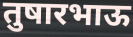
तुषारभाऊ